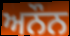
ਅਨੌਨ